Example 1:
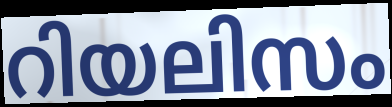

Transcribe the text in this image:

റിയലിസം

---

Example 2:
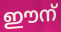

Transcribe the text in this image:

ഈന്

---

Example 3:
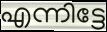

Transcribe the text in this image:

എന്നിട്ടേ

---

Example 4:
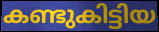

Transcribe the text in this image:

കണ്ടുകിട്ടിയ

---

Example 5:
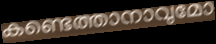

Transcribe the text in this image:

കണ്ടെത്താനാവുമോ